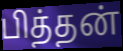
பித்தன்